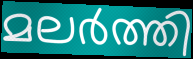
മലർത്തി